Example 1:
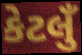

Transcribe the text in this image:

કેટલુઁ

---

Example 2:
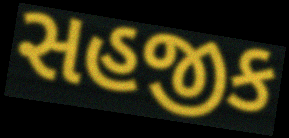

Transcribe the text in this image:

સહજીક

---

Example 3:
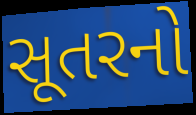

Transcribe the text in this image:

સૂતરનો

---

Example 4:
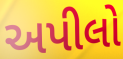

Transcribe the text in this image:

અપીલો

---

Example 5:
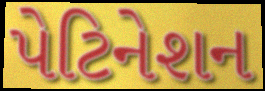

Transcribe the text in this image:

પેટિનેશન